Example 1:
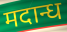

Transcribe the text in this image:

मदान्ध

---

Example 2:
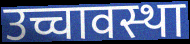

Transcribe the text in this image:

उच्चावस्था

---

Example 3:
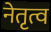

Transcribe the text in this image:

नेतृत्व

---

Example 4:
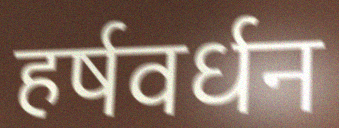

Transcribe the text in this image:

हर्षवर्धन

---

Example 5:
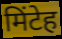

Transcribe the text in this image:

मिंटेह